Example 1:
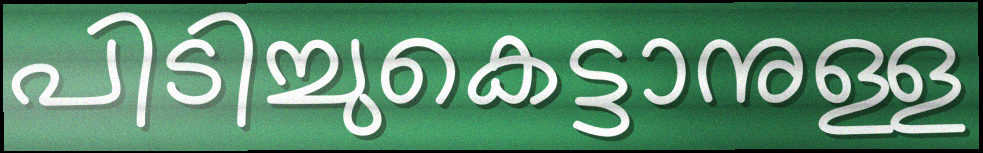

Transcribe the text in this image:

പിടിച്ചുകെട്ടാനുള്ള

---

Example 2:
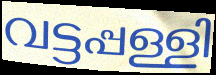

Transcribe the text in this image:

വട്ടപ്പള്ളി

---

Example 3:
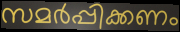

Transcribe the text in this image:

സമർപ്പിക്കണം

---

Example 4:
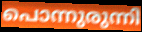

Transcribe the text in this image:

പൊന്നുരുന്നി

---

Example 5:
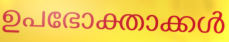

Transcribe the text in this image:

ഉപഭോക്താക്കൾ